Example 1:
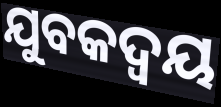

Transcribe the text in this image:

ଯୁବକଦ୍ୱୟ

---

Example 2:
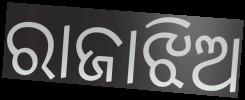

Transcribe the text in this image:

ରାଜାଝିଅ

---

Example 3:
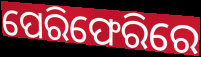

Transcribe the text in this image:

ପେରିଫେରିରେ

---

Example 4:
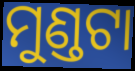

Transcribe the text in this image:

ମୁଣ୍ଡଟା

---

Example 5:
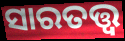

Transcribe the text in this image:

ସାରତତ୍ତ୍ଵ